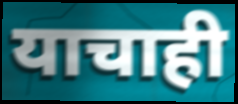
याचाही